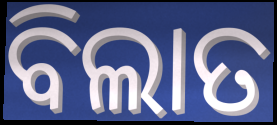
ବିଲାତ